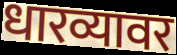
धारव्यावर